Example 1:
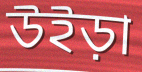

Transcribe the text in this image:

উইড়া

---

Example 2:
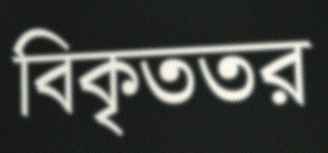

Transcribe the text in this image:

বিকৃততর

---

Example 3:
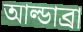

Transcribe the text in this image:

আল্ডাব্রা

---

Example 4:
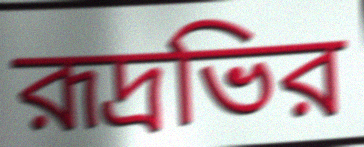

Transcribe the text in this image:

রূদ্রভির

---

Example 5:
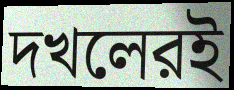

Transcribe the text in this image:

দখলেরই